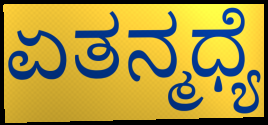
ಏತನ್ಮಧ್ಯೆ